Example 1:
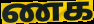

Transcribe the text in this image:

ணக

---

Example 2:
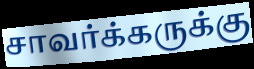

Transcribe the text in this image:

சாவர்க்கருக்கு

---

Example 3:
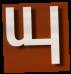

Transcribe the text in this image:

யு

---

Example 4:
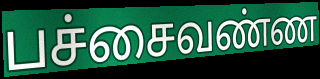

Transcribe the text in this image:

பச்சைவண்ண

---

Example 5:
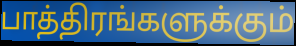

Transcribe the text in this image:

பாத்திரங்களுக்கும்